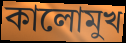
কালোমুখ